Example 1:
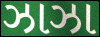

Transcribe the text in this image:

ઝાઝા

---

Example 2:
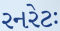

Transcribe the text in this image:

રનરેટઃ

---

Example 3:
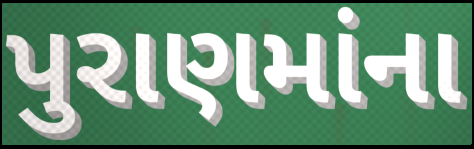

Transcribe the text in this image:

પુરાણમાંના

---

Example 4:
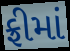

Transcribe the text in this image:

ફ્રીમાં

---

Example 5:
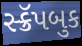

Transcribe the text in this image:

સ્ક્રૅપબુક